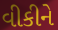
વીકીને